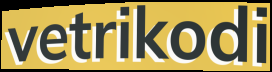
vetrikodi